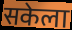
सकेला